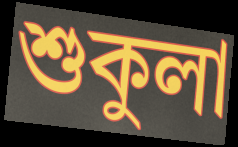
শুকুলা